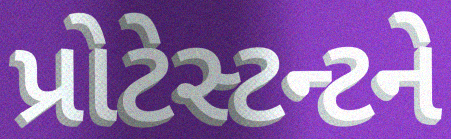
પ્રોટેસ્ટન્ટને